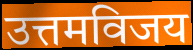
उत्तमविजय